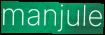
manjule